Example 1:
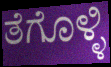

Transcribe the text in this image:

ತೆಗೊಳ್ಳಿ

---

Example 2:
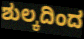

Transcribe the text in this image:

ಶುಲ್ಕದಿಂದ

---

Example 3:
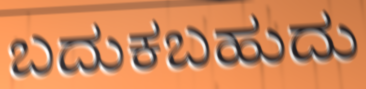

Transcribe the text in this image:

ಬದುಕಬಹುದು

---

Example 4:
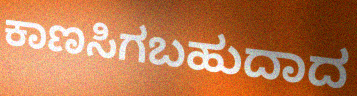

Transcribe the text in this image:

ಕಾಣಸಿಗಬಹುದಾದ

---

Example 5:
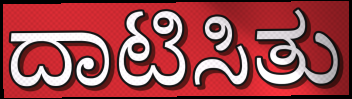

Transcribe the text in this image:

ದಾಟಿಸಿತು